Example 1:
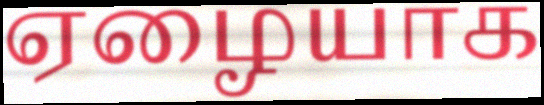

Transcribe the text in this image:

ஏழையாக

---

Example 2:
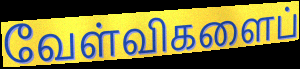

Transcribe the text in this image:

வேள்விகளைப்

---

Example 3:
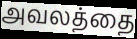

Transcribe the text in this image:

அவலத்தை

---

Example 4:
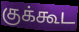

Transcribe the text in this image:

குக்கூட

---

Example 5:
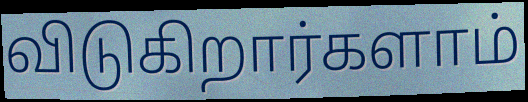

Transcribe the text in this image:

விடுகிறார்களாம்